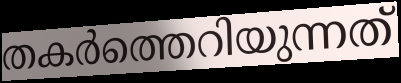
തകർത്തെറിയുന്നത്